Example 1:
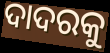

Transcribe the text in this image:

ଦାଦରକୁ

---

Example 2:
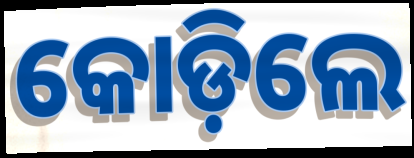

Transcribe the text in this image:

କୋଡ଼ିଲେ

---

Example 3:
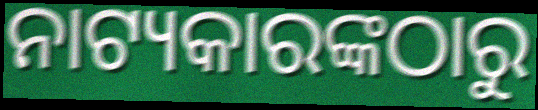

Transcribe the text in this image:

ନାଟ୍ୟକାରଙ୍କଠାରୁ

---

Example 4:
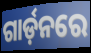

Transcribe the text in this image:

ଗାର୍ଡ଼ନରେ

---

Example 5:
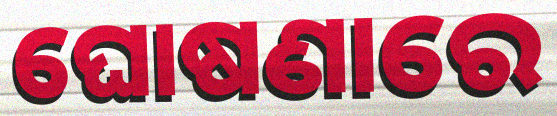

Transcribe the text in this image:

ଘୋଷଣାରେ